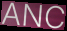
ANC